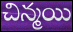
చిన్మయి